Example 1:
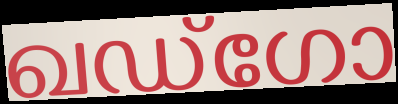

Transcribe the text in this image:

ഖഡ്ഗോ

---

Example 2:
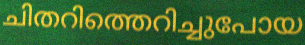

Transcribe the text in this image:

ചിതറിത്തെറിച്ചുപോയ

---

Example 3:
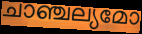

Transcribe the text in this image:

ചാഞ്ചല്യമോ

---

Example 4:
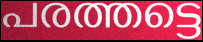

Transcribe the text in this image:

പരത്തട്ടെ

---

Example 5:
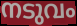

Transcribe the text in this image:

നടുവം